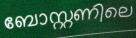
ബോസ്റ്റണിലെ